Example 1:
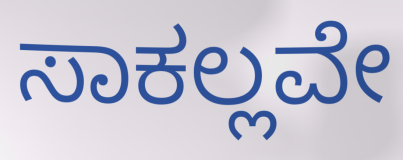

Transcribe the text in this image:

ಸಾಕಲ್ಲವೇ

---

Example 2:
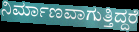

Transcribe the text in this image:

ನಿರ್ಮಾಣವಾಗುತ್ತಿದ್ದರೆ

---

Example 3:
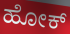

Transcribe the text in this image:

ಹೋಕ್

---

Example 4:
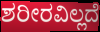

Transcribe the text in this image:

ಶರೀರವಿಲ್ಲದೆ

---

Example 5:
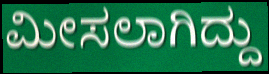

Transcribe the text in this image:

ಮೀಸಲಾಗಿದ್ದು